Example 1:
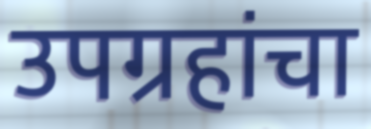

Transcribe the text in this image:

उपग्रहांचा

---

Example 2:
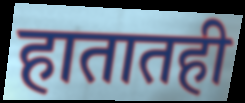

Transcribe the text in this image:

हातातही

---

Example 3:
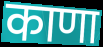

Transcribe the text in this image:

काणा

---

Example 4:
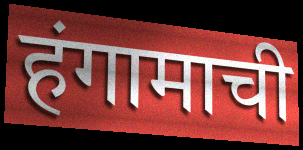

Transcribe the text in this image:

हंगामाची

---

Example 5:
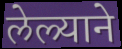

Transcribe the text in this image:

लेल्याने